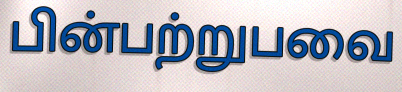
பின்பற்றுபவை